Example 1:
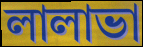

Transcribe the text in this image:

লালাভা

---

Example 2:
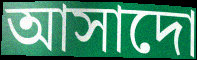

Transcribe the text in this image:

আসাদো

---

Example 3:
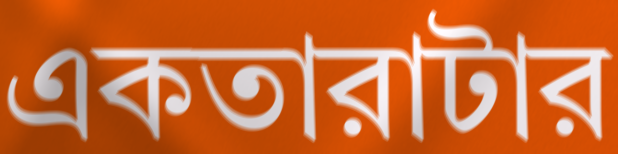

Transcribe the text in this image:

একতারাটার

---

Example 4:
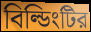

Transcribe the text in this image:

বিল্ডিংটির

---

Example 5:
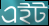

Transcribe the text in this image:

এইট